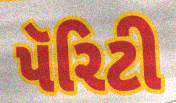
પૅરિટી